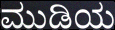
ಮುಡಿಯ